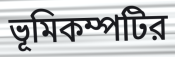
ভূমিকম্পটির